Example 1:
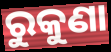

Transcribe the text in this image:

ରୁକୁଣା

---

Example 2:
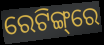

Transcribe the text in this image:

ରେଟିଙ୍ଗ୍‌ରେ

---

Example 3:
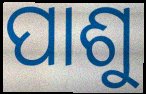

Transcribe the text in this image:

ପାଶୁ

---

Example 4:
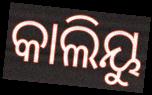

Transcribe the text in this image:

କାଲିୟୁ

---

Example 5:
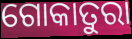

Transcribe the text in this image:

ଗୋକାତୁରା